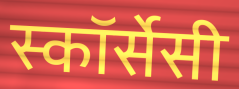
स्कॉर्सेसी